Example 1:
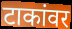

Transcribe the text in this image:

टाकांवर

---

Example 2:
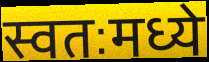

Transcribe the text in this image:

स्वतःमध्ये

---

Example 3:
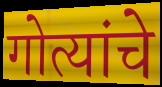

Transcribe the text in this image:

गोत्यांचे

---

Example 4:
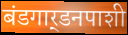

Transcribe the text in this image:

बंडगार्डनपाशी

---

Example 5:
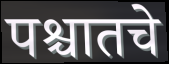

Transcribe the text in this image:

पश्चातचे